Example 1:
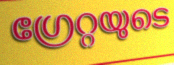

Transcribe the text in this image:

ഗ്രേറ്റയുടെ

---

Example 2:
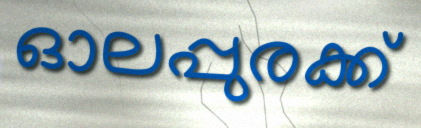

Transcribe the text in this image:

ഓലപ്പുരക്ക്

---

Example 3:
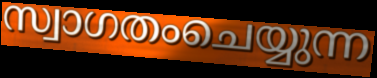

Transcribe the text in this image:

സ്വാഗതംചെയ്യുന്ന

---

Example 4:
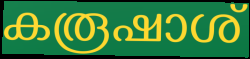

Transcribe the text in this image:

കരൂഷാശ്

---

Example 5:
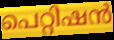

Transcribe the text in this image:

പെറ്റിഷൻ